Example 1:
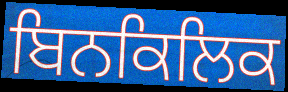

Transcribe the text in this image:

ਬਿਨਕਿਲਿਕ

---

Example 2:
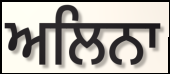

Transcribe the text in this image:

ਅਲਿਨਾ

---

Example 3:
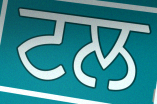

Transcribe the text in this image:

ਟਲ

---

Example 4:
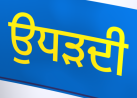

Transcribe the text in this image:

ਉਧੜਦੀ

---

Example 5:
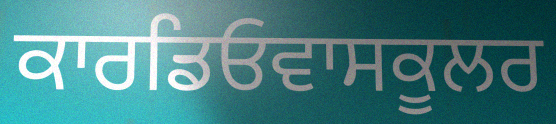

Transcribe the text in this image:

ਕਾਰਡਿਓਵਾਸਕੂਲਰ